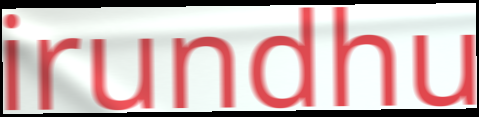
irundhu